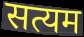
सत्यम